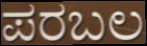
ಪರಬಲ